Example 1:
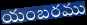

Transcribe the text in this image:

యంబరము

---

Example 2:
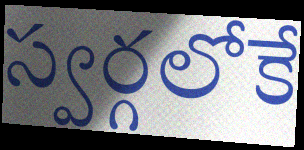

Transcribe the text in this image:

స్వర్గలోకే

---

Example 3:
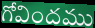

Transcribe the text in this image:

గోవిందము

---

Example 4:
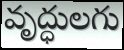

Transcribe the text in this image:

వృద్ధులగు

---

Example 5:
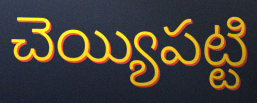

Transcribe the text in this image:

చెయ్యిపట్టి